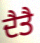
ਦੈਤੈ